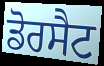
ਡੋਰਸੈਟ